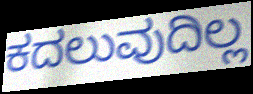
ಕದಲುವುದಿಲ್ಲ